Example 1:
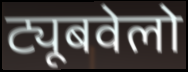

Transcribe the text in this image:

ट्यूबवेलो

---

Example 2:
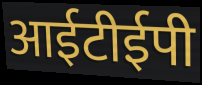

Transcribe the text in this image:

आईटीईपी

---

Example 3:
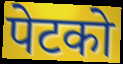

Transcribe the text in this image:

पेटको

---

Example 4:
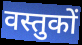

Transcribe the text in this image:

वस्तुकों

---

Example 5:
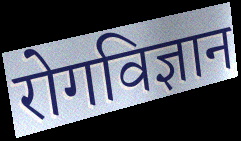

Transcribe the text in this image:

रोगविज्ञान